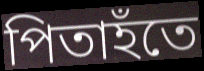
পিতাহঁতে